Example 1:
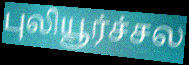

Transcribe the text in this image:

புலியூர்ச்சல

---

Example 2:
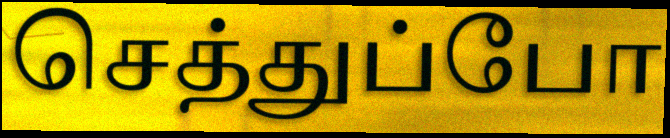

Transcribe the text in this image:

செத்துப்போ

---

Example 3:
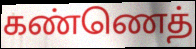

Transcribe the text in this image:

கண்ணெத்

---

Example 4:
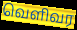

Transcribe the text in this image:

வெளிவர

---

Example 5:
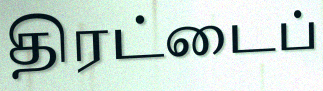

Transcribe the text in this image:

திரட்டைப்